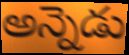
అన్నెడు